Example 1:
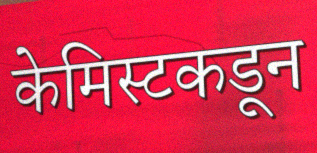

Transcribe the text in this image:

केमिस्टकडून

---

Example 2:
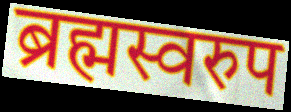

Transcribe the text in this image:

ब्रह्मस्वरुप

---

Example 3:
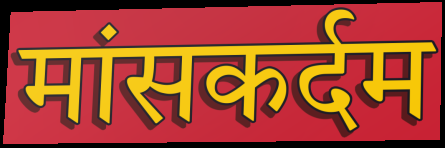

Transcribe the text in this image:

मांसकर्दम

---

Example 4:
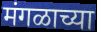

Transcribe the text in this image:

मंगळाच्या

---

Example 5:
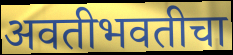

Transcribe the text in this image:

अवतीभवतीचा